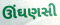
ઊંઘણસી